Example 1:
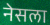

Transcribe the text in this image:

नेसला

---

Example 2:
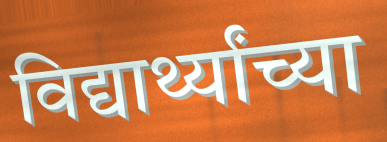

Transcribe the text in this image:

विद्यार्थ्यांच्या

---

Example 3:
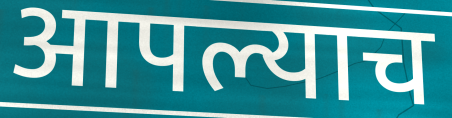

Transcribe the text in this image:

आपल्याच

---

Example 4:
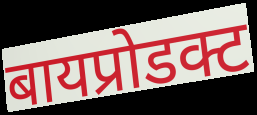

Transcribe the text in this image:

बायप्रोडक्ट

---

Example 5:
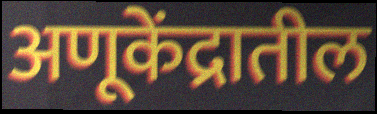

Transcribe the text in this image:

अणूकेंद्रातील